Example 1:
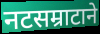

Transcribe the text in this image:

नटसम्राटाने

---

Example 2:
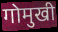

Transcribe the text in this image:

गोमुखी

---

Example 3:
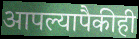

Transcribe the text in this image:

आपल्यापैकीही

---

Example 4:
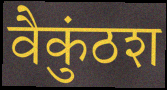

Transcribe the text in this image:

वैकुंठश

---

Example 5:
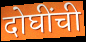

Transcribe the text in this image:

दोघींची